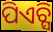
ପିଏଚ୍ସି